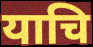
याचि